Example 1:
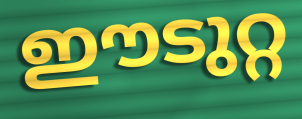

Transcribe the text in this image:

ഈടുറ്റ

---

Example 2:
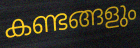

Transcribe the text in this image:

കണ്ടങ്ങളും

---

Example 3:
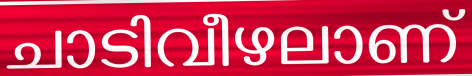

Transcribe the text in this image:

ചാടിവീഴലാണ്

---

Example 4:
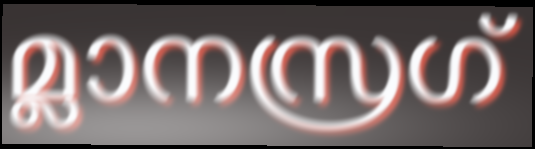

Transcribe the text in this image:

മ്ലാനസ്രഗ്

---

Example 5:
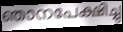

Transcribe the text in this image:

ഞാനപേക്ഷിച്ചു